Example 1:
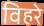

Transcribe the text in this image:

विहरे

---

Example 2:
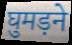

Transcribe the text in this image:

घुमड़ने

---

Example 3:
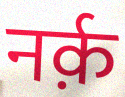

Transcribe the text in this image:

नर्क़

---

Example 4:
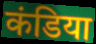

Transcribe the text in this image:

कंडिया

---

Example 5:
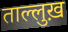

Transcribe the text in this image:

ताल्लुख़